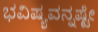
ಭವಿಷ್ಯವನ್ನಷ್ಟೇ